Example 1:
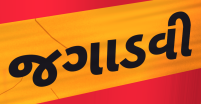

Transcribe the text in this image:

જગાડવી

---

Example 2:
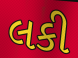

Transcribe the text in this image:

લકી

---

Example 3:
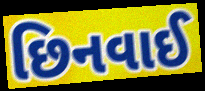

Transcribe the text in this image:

છિનવાઈ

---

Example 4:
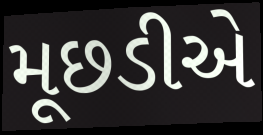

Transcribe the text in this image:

મૂછડીએ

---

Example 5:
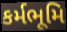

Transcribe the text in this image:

કર્મભૂમિ